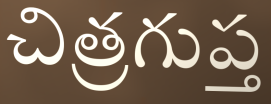
చిత్రగుప్త